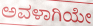
ಅವಳಾಗಿಯೇ